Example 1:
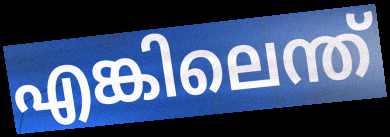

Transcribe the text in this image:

എങ്കിലെന്ത്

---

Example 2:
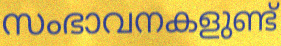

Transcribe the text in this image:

സംഭാവനകളുണ്ട്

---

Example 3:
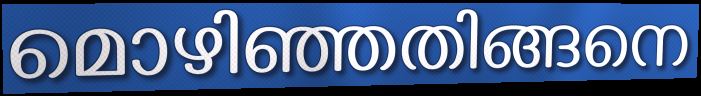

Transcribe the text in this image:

മൊഴിഞ്ഞതിങ്ങനെ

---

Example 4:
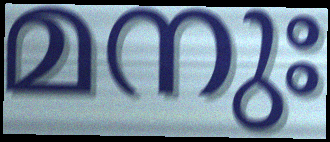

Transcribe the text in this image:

മനുഃ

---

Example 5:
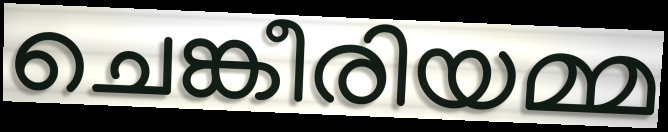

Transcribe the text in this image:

ചെങ്കീരിയമ്മ